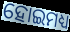
ହୋଇମଧ୍ୟ